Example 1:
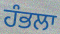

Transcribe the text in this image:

ਹੰਭਲਾ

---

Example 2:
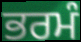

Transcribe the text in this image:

ਭਰਮੰ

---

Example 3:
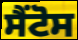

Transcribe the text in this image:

ਸੈਂਟੋਸ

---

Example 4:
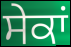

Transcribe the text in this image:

ਸੇਕਾਂ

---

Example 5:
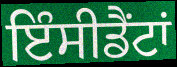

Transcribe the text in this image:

ਇੰਸੀਡੈਂਟਾਂ